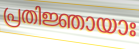
പ്രതിജ്ഞായാഃ